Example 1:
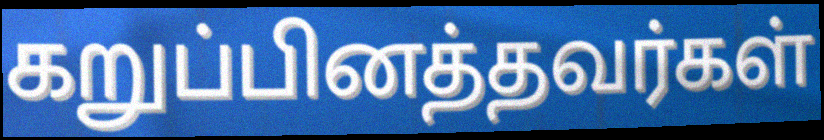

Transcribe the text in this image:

கறுப்பினத்தவர்கள்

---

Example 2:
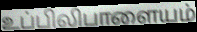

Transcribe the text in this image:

உப்பிலிபாளையம்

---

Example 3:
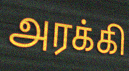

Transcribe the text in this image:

அரக்கி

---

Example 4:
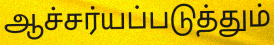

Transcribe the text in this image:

ஆச்சர்யப்படுத்தும்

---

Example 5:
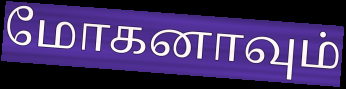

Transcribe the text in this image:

மோகனாவும்